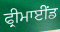
ਫ੍ਰੀਮਾਈਂਡ